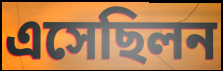
এসেছিলন